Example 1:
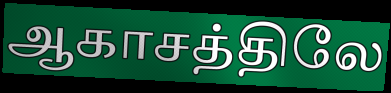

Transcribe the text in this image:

ஆகாசத்திலே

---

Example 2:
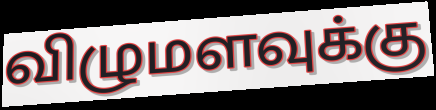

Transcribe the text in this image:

விழுமளவுக்கு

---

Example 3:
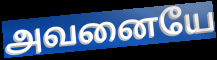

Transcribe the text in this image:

அவனையே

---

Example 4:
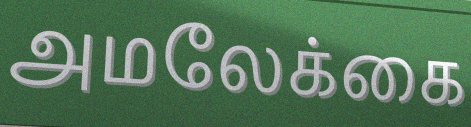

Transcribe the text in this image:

அமலேக்கை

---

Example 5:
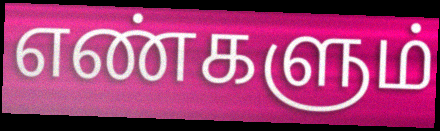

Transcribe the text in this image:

எண்களும்